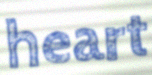
heart